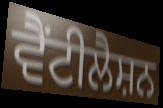
ਵੈਂਟੀਲੈਸ਼ਨ